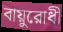
বায়ুরোধী